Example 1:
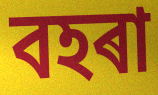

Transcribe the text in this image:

বহৰা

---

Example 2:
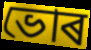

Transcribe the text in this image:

ভোৰ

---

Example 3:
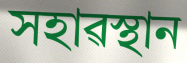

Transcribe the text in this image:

সহাৱস্থান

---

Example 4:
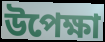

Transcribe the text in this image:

উপেক্ষা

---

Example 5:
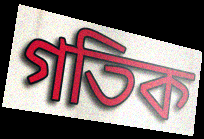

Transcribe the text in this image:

গতিক